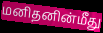
மனிதனின்மீது